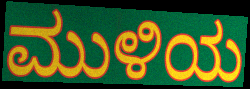
ಮುಳಿಯ